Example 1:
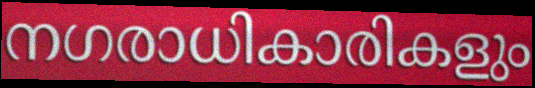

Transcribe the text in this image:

നഗരാധികാരികളും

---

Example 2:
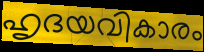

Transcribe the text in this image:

ഹൃദയവികാരം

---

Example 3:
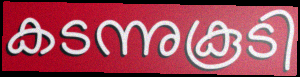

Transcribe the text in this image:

കടന്നുകൂടി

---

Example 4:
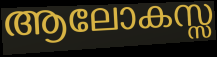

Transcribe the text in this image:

ആലോകസ്സ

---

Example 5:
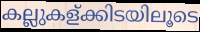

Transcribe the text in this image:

കല്ലുകള്ക്കിടയിലൂടെ